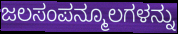
ಜಲಸಂಪನ್ಮೂಲಗಳನ್ನು